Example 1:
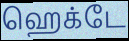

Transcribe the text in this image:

ஹெக்டே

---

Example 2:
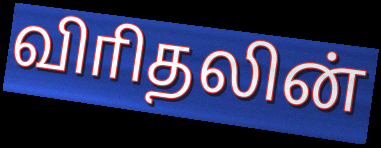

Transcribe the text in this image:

விரிதலின்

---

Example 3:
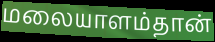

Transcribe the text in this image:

மலையாளம்தான்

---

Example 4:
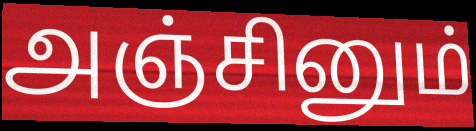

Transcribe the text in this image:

அஞ்சினும்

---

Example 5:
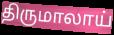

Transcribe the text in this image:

திருமாலாய்